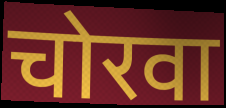
चोरवा